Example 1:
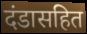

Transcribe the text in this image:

दंडासहित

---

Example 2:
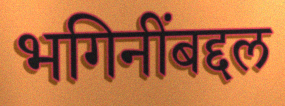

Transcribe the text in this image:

भगिनींबद्दल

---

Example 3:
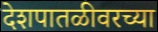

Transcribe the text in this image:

देशपातळीवरच्या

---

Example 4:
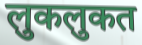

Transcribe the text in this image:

लुकलुकत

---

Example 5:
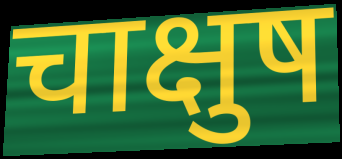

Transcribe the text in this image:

चाक्षुष